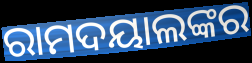
ରାମଦୟାଲଙ୍କର